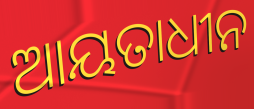
ଆୟତାଧୀନ